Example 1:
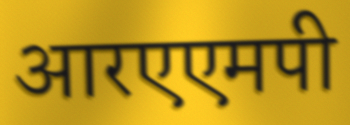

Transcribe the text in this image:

आरएएमपी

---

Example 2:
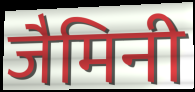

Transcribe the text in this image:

जैमिनी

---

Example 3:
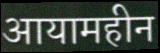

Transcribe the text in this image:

आयामहीन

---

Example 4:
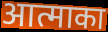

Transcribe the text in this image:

आत्माका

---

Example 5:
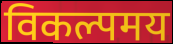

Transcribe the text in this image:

विकल्पमय